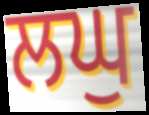
ਲਘੁ